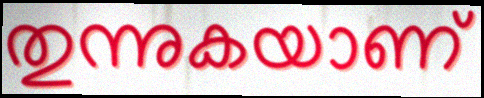
തുന്നുകയാണ്